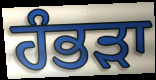
ਹੰਭੜਾ